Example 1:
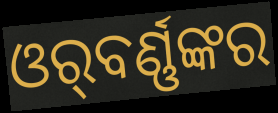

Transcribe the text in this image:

ଓର୍‌ବର୍ଣ୍ଣଙ୍କର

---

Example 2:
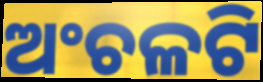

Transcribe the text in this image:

ଅଂଚଳଟି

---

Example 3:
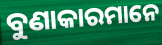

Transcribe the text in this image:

ବୁଣାକାରମାନେ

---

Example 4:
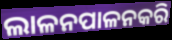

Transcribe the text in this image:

ଲାଳନପାଳନକରି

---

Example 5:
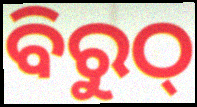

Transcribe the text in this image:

ବିରୁଠ୍